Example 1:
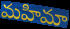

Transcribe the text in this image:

మహిమా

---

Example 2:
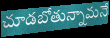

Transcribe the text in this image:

చూడబోతున్నామనే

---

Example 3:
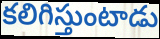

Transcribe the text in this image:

కలిగిస్తుంటాడు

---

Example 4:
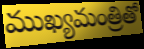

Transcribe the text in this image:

ముఖ్యమంత్రితో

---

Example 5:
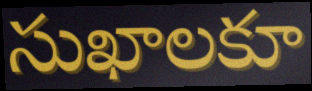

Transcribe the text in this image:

సుఖాలకూ